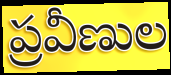
ప్రవీణుల